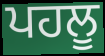
ਪਹਲੂ